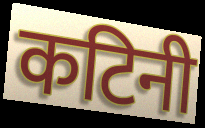
कटिनी